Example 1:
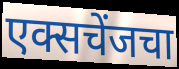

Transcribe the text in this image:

एक्सचेंजचा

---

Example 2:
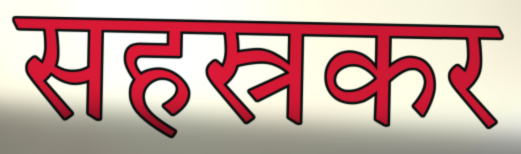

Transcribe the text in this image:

सहस्रकर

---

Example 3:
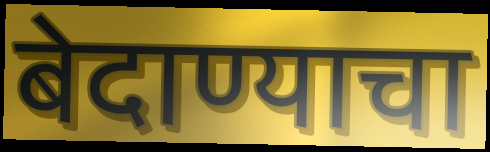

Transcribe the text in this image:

बेदाण्याचा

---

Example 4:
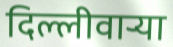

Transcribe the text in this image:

दिल्लीवाऱ्या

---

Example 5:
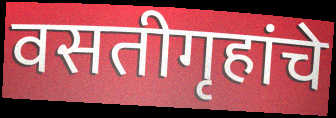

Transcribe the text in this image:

वसतीगृहांचे